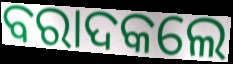
ବରାଦକଲେ